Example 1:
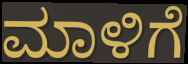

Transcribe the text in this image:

ಮಾಳಿಗೆ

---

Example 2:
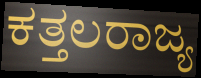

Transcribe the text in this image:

ಕತ್ತಲರಾಜ್ಯ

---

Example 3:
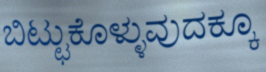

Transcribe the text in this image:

ಬಿಟ್ಟುಕೊಳ್ಳುವುದಕ್ಕೂ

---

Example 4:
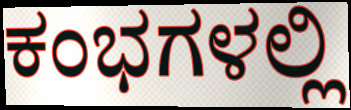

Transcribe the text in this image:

ಕಂಭಗಳಲ್ಲಿ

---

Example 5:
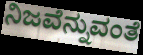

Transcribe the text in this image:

ನಿಜವೆನ್ನುವಂತೆ